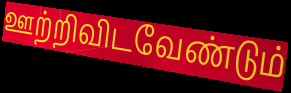
ஊற்றிவிடவேண்டும்